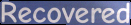
Recovered